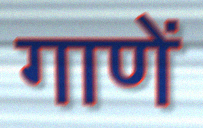
गाणें